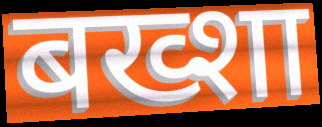
बख्शा